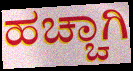
ಹಚ್ಚಾಗಿ